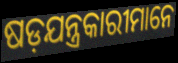
ଷଡ଼ଯନ୍ତ୍ରକାରୀମାନେ